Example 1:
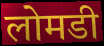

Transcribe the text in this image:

लोमडी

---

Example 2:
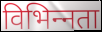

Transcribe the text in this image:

विभिन्‍नता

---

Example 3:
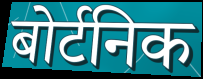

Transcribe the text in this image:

बोर्टनिक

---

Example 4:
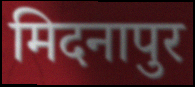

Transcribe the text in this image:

मिदनापुर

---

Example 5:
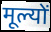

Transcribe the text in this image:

मूल्यों